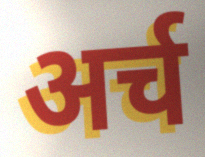
अर्च